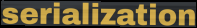
serialization